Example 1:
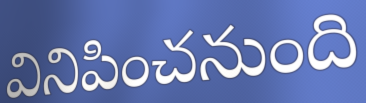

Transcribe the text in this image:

వినిపించనుంది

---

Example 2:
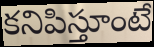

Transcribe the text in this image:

కనిపిస్తూంటే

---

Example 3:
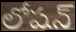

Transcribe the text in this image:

లోషన్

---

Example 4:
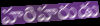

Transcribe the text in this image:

హరిహరుడు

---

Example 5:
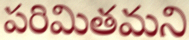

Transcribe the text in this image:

పరిమితమని